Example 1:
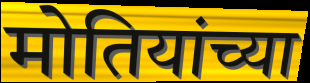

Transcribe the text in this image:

मोतियांच्या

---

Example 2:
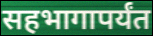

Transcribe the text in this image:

सहभागापर्यंत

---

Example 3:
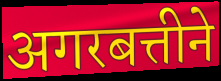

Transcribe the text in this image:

अगरबत्तीने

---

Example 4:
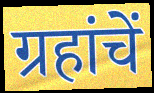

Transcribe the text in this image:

ग्रहांचें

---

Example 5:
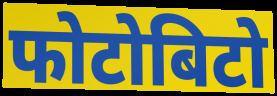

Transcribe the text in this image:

फोटोबिटो